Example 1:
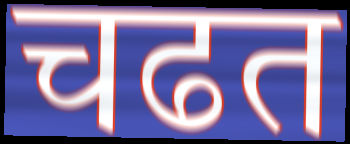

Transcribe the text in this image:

चढत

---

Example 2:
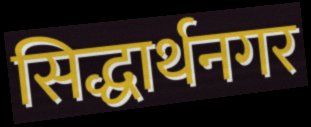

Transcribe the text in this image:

सिद्धार्थनगर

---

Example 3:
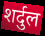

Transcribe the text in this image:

शर्दुल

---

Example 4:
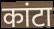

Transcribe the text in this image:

कांटा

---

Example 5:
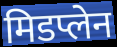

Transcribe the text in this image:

मिडप्लेन